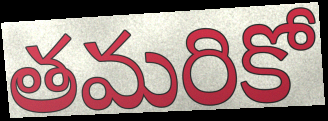
తమరికో